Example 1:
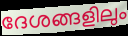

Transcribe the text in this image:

ദേശങ്ങളിലും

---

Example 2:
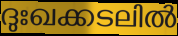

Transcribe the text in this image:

ദുഃഖക്കടലിൽ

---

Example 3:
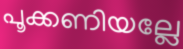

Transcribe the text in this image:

പൂക്കണിയല്ലേ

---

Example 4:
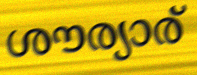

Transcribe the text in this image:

ശൗര്യാര്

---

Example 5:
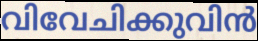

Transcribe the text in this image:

വിവേചിക്കുവിൻ